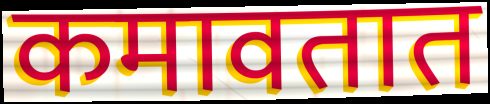
कमावतात